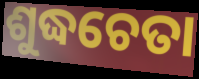
ଶୁଦ୍ଧଚେତା